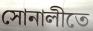
সোনালীতে